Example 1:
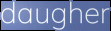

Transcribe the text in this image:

daugher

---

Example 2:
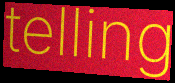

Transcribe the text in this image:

telling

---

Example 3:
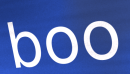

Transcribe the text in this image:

boo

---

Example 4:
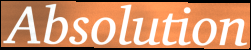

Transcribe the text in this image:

Absolution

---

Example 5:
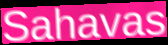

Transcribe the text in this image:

Sahavas